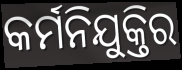
କର୍ମନିଯୁକ୍ତିର